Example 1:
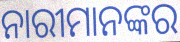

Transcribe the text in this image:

ନାରୀମାନଙ୍କର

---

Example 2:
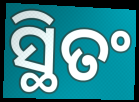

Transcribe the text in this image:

ସ୍ଥିତଂ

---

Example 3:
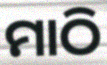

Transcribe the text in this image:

ମାଠି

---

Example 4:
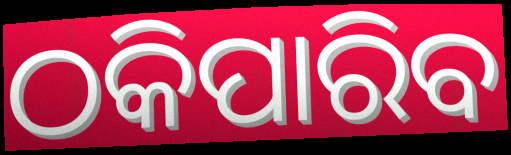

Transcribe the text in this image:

ଠକିପାରିବ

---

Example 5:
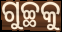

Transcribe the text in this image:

ଗୁଚ୍ଛକୁ